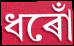
ধৰোঁ